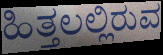
ಹಿತ್ತಲಲ್ಲಿರುವ